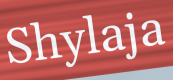
Shylaja